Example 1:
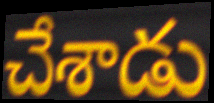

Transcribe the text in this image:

చేశాడు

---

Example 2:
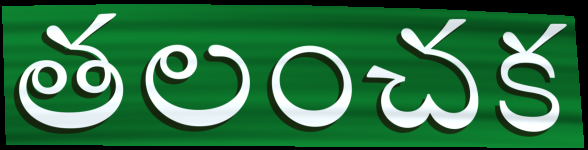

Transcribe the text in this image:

తలంచక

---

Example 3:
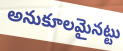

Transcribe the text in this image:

అనుకూలమైనట్టు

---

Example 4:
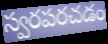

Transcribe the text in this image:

స్వరపరచడం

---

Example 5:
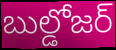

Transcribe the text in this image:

బుల్డోజర్